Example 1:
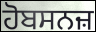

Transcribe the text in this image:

ਹੋਬਸਨਜ਼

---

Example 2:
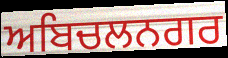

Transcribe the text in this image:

ਅਬਿਚਲਨਗਰ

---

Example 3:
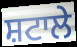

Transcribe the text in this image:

ਸ਼ਟਾਲੇ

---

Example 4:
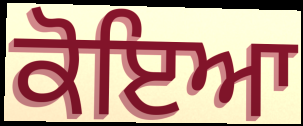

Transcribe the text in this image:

ਕੋਇਆ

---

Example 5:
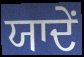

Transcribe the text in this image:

ਯਾਦੇਂ